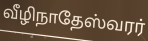
வீழிநாதேஸ்வரர்